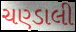
ચણ્ડાલી